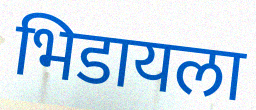
भिडायला